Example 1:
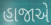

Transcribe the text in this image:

હાજાએ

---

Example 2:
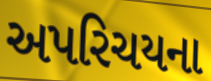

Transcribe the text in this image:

અપરિચયના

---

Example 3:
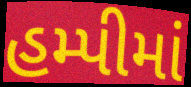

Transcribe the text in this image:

હમ્પીમાં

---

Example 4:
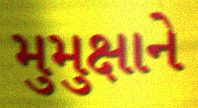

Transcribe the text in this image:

મુમુક્ષાને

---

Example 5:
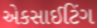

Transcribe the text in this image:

એકસાઈટિંગ